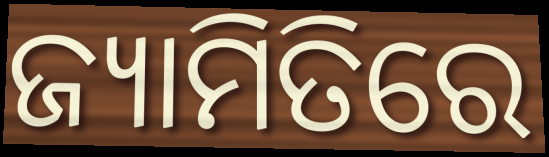
ଜ୍ୟାମିତିରେ